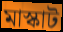
মাস্কাট